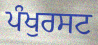
ਪੰਖੁਰਸਟ